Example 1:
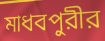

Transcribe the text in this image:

মাধবপুরীর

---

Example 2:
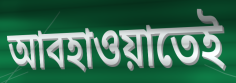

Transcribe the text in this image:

আবহাওয়াতেই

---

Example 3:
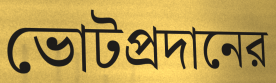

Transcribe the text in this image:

ভোটপ্রদানের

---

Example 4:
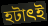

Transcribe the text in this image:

হটাৎই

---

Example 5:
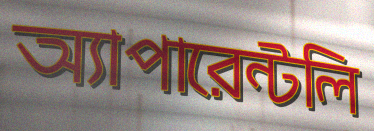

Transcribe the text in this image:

অ্যাপারেন্টলি